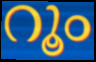
റൂം